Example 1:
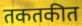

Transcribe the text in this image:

तकतकीत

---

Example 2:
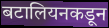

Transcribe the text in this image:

बटालियनकडून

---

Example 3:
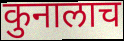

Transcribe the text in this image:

कुनालाच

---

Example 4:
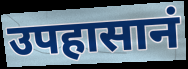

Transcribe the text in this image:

उपहासानं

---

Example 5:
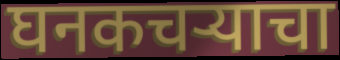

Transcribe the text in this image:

घनकचऱ्याचा